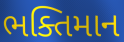
ભક્તિમાન